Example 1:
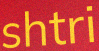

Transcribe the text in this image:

shtri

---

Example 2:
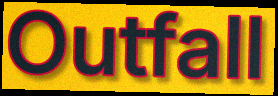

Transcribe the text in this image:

Outfall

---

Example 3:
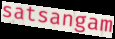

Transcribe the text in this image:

satsangam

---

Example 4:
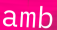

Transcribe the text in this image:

amb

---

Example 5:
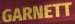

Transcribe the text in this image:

GARNETT